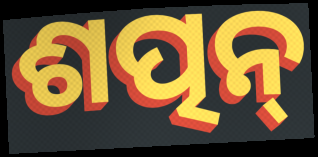
ଶତ୍ପନ୍